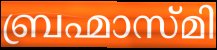
ബ്രഹ്മാസ്മി